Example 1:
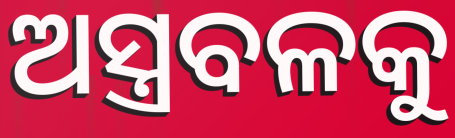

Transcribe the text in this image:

ଅସ୍ତ୍ରବଳକୁ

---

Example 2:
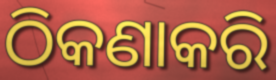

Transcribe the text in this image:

ଠିକଣାକରି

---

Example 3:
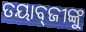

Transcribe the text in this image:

ତୟାବ୍‌ଜୀଙ୍କୁ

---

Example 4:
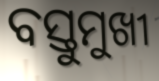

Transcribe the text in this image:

ବସ୍ତୁମୁଖୀ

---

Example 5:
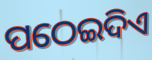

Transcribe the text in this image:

ପଠେଇଦିଏ